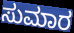
ಸುಮಾರ